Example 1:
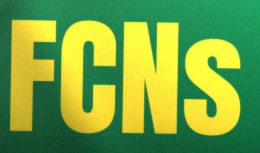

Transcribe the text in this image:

FCNs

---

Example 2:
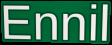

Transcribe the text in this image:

Ennil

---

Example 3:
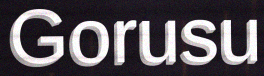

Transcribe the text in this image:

Gorusu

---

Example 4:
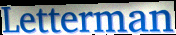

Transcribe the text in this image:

Letterman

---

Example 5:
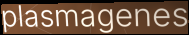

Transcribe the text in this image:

plasmagenes